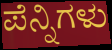
ಪೆನ್ನಿಗಳು